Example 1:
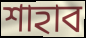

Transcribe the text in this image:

শাহাব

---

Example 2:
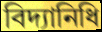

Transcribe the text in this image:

বিদ্যানিধি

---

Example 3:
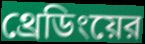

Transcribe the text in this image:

থ্রেডিংয়ের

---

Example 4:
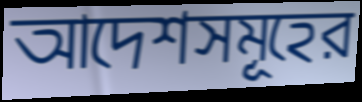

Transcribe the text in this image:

আদেশসমূহের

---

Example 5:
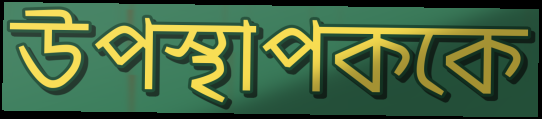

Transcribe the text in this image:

উপস্থাপককে